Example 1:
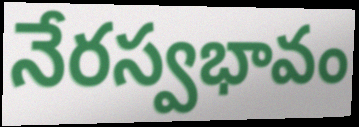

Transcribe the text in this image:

నేరస్వభావం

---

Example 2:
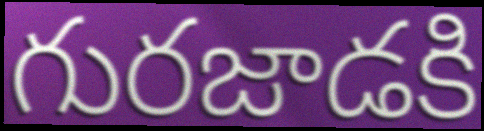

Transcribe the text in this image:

గురజాడకి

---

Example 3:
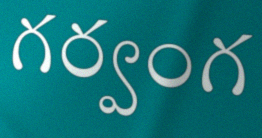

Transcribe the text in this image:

గర్వంగ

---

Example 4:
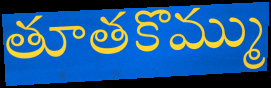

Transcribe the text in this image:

తూతకొమ్ము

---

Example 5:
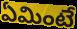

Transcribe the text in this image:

ఏమింటే